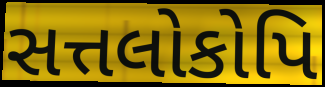
સત્તલોકોપિ